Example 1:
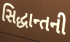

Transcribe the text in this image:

સિદ્ધાન્તની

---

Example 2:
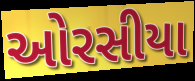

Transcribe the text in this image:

ઓરસીયા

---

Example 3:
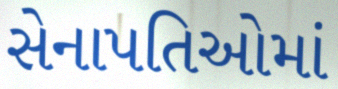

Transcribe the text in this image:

સેનાપતિઓમાં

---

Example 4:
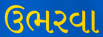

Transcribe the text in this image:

ઉભરવા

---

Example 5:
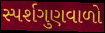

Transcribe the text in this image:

સ્પર્શગુણવાળો